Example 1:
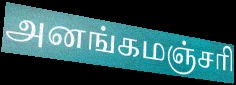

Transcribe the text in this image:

அனங்கமஞ்சரி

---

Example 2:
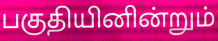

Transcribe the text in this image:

பகுதியினின்றும்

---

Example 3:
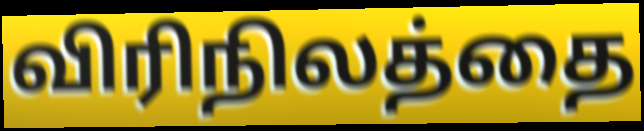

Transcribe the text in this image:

விரிநிலத்தை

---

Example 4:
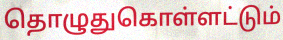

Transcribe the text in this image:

தொழுதுகொள்ளட்டும்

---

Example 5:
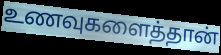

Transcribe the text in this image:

உணவுகளைத்தான்